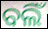
ବଲିଁ